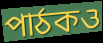
পাঠকও